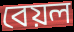
বেয়ল